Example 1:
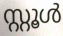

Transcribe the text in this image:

സ്റ്റൂൾ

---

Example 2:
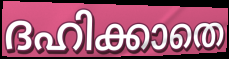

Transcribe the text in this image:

ദഹിക്കാതെ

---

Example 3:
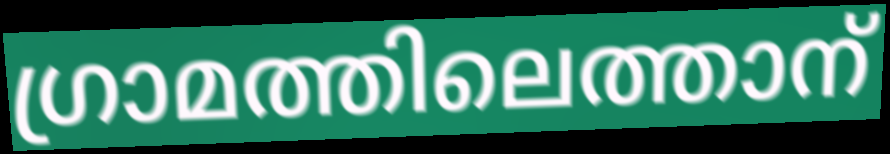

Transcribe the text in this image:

ഗ്രാമത്തിലെത്താന്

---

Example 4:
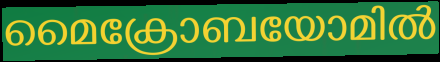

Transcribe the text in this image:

മൈക്രോബയോമിൽ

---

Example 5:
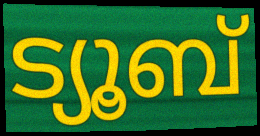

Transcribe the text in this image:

ട്യൂബ്